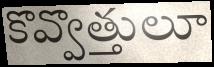
కొవ్వొత్తులూ